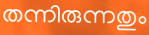
തന്നിരുന്നതും